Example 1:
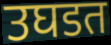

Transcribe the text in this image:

उघडत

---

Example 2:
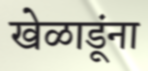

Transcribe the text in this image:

खेळाडूंना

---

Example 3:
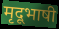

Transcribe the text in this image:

मृदूभाषी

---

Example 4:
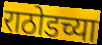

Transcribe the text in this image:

राठोडच्या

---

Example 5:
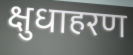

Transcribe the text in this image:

क्षुधाहरण